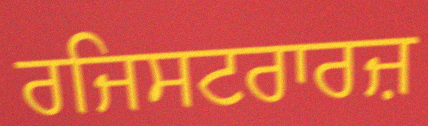
ਰਜਿਸਟਰਾਰਜ਼